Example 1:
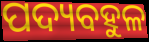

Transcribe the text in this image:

ପଦ୍ୟବହୁଳ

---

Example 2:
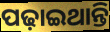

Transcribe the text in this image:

ପଢ଼ାଇଥାନ୍ତି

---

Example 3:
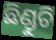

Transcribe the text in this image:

ଛିଣ୍ଡୁଚି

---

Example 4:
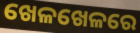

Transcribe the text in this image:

ଖେଳଖେଳରେ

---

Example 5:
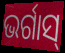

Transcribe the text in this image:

ଭର୍ଗାସ୍